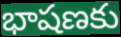
భాషణకు